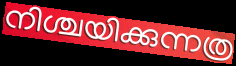
നിശ്ചയിക്കുന്നത്ര